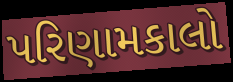
પરિણામકાલો